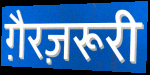
ग़ैरज़रूरी